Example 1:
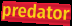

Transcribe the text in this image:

predator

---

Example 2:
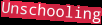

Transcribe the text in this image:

Unschooling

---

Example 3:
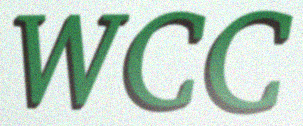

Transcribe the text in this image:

WCC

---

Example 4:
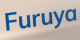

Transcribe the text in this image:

Furuya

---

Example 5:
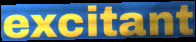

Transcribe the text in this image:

excitant